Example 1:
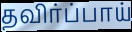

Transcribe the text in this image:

தவிர்ப்பாய்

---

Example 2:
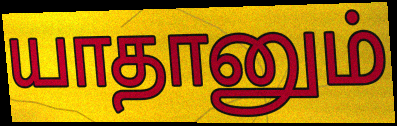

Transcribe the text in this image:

யாதானும்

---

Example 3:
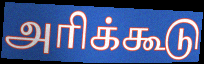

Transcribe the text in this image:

அரிக்கூடு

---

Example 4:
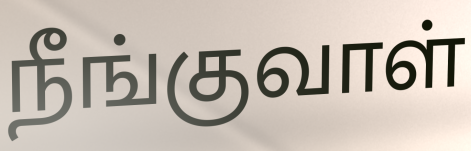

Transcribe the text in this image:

நீங்குவாள்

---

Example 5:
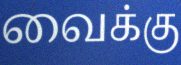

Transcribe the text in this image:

வைக்கு